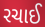
રચાઈ